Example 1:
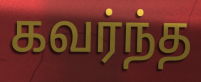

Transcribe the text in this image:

கவர்ந்த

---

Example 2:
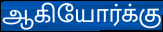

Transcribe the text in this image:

ஆகியோர்க்கு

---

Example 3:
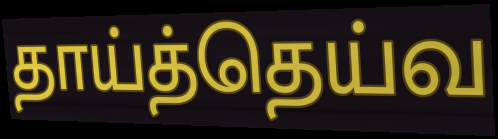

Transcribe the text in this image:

தாய்த்தெய்வ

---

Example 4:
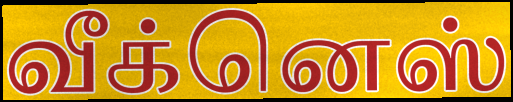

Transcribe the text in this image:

வீக்னெஸ்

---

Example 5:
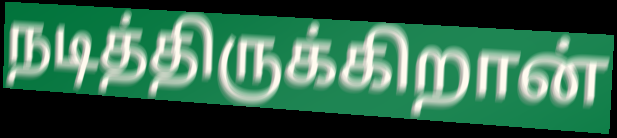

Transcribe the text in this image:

நடித்திருக்கிறான்